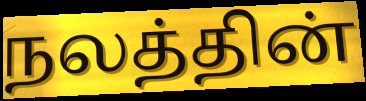
நலத்தின்